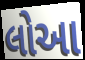
લોઆ